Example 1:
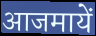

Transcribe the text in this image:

आजमायें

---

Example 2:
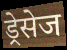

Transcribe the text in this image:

ड्रेसेज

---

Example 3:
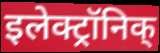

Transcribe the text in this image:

इलेक्ट्रॉनिक्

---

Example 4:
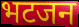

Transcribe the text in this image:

भटजन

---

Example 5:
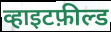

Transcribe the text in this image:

व्हाइटफ़ील्ड